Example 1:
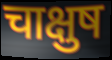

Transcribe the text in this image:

चाक्षुष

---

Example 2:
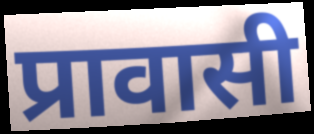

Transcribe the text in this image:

प्रावासी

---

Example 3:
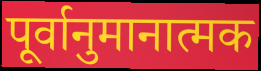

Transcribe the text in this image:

पूर्वानुमानात्मक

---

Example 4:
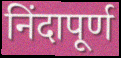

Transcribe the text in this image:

निंदापूर्ण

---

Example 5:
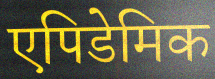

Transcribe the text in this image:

एपिडेमिक